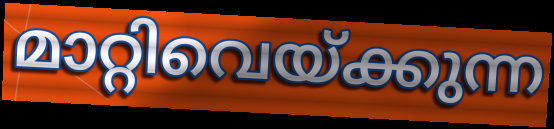
മാറ്റിവെയ്ക്കുന്ന